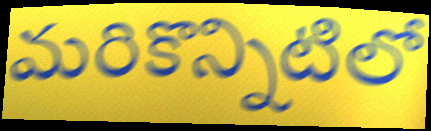
మరికొన్నిటిలో